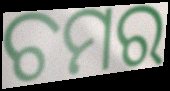
ଚମର